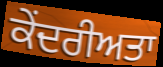
ਕੇਂਦਰੀਅਤਾ